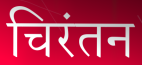
चिरंतन